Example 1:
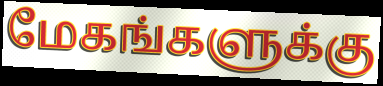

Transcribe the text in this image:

மேகங்களுக்கு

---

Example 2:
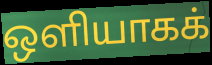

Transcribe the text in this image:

ஒளியாகக்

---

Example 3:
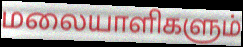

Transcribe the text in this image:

மலையாளிகளும்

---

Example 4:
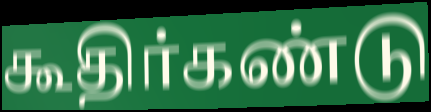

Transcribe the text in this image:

கூதிர்கண்டு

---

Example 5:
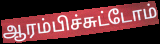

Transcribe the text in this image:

ஆரம்பிச்சுட்டோம்